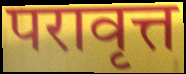
परावृत्त